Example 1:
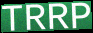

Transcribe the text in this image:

TRRP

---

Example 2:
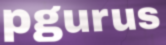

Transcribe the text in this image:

pgurus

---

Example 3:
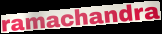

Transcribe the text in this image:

ramachandra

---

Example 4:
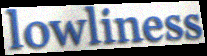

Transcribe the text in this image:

lowliness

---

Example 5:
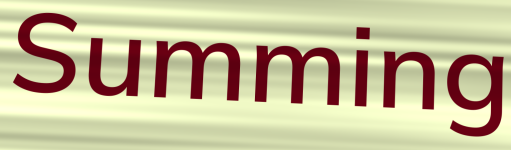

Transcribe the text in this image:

Summing